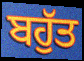
ਬਹੁੱਤ